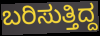
ಬರಿಸುತ್ತಿದ್ದ